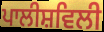
ਪਾਲੀਸ਼ਵਿਲੀ